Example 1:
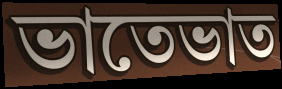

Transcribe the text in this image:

ভাতেভাত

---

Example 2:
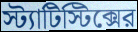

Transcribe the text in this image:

স্ট্যাটিস্টিক্সের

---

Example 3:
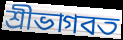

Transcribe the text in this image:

শ্রীভাগবত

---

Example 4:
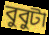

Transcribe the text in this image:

বুবুটা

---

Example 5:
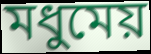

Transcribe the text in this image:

মধুমেয়